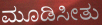
ಮೂಡಿಸೀತು